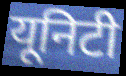
यूनिटी